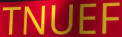
TNUEF